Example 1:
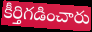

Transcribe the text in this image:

కీర్తిగడించారు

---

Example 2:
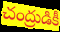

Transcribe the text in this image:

చంద్రుడికీ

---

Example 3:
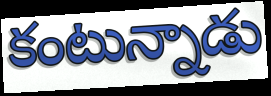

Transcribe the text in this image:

కంటున్నాడు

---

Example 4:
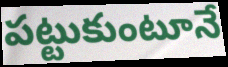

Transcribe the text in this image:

పట్టుకుంటూనే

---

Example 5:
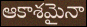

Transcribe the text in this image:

ఆకాశమైనా